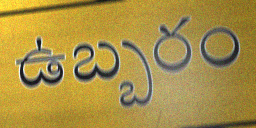
ఉబ్బరం